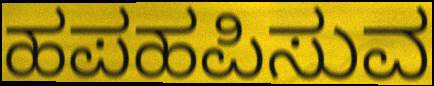
ಹಪಹಪಿಸುವ